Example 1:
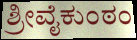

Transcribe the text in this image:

ಶ್ರೀವೈಕುಂಠಂ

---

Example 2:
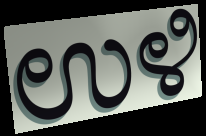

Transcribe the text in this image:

ಉಳಿ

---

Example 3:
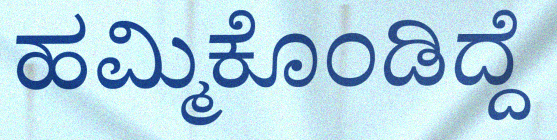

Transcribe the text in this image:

ಹಮ್ಮಿಕೊಂಡಿದ್ದೆ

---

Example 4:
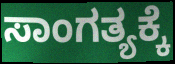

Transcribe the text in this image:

ಸಾಂಗತ್ಯಕ್ಕೆ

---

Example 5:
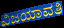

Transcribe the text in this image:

ವಿಜಯಾವತಿ